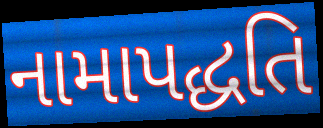
નામાપદ્ધતિ